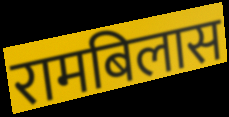
रामबिलास